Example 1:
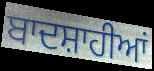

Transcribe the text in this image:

ਬਾਦਸ਼ਾਹੀਆਂ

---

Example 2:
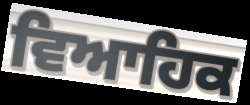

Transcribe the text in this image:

ਵਿਆਹਿਕ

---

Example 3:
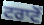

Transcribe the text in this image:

ਟਰਾਟੋਂ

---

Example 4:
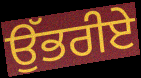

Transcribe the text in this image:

ਉੱਭਰੀਏ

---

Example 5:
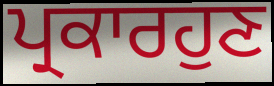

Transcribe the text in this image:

ਪ੍ਰਕਾਰਹੁਣ